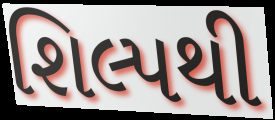
શિલ્પથી